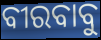
ବୀରବାବୁ